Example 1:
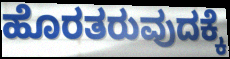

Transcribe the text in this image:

ಹೊರತರುವುದಕ್ಕೆ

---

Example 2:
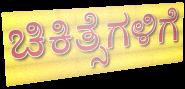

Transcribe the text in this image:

ಚಿಕಿತ್ಸೆಗಳಿಗೆ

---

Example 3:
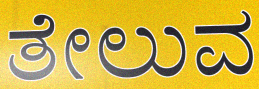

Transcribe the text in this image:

ತೇಲುವ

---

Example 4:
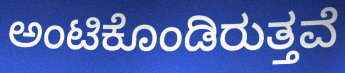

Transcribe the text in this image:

ಅಂಟಿಕೊಂಡಿರುತ್ತವೆ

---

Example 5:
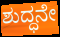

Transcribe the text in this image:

ಶುದ್ಧನೇ